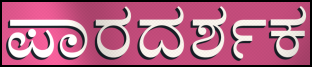
ಪಾರದರ್ಶಕ